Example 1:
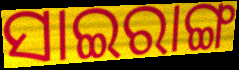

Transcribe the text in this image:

ସାଇରାଙ୍ଗ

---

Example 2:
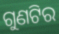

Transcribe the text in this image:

ଗୁଣଟିର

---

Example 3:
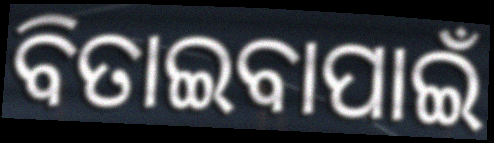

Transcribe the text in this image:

ବିତାଇବାପାଇଁ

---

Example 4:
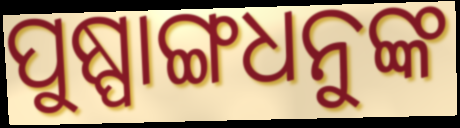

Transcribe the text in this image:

ପୁଷ୍ପାଙ୍ଗଧନୁଙ୍କ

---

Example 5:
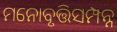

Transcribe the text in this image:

ମନୋବୃତ୍ତିସମ୍ପନ୍ନ